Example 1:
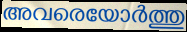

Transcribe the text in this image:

അവരെയോർത്തു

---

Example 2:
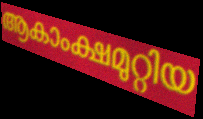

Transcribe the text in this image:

ആകാംക്ഷമുറ്റിയ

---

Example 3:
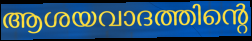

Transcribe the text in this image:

ആശയവാദത്തിന്റെ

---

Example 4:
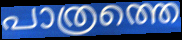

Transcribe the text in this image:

പാത്രത്തെ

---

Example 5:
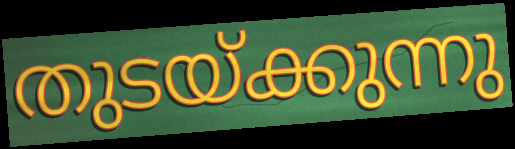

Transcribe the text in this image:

തുടയ്ക്കുന്നു